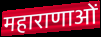
महाराणाओं